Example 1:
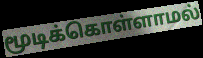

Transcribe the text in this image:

மூடிக்கொள்ளாமல்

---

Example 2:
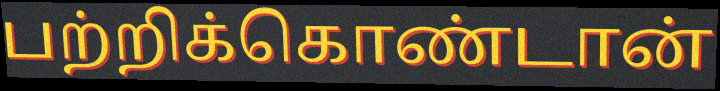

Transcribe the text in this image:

பற்றிக்கொண்டான்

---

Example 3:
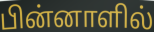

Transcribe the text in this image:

பின்னாளில்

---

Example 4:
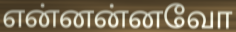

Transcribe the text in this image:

என்னன்னவோ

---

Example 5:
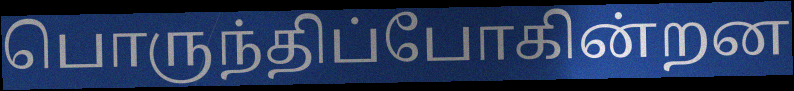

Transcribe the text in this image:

பொருந்திப்போகின்றன